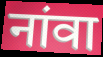
नांवा